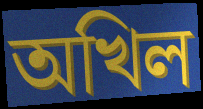
অখিল